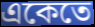
একেতে